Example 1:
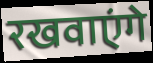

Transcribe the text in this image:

रखवाएंगे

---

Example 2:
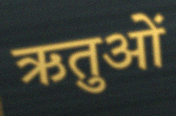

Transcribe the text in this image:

ऋतुओं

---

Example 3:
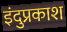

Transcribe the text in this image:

इंदुप्रकाश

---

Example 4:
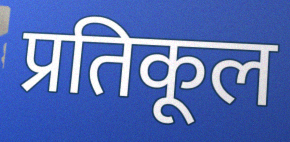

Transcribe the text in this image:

प्रतिकूल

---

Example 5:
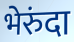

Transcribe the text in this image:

भेरुंदा